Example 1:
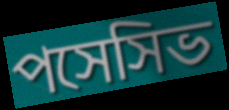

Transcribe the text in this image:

পসেসিভ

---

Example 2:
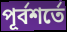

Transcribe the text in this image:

পূর্বশর্তে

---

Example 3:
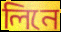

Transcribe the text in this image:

লিনে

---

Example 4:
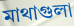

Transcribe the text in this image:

মাথাগুলা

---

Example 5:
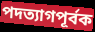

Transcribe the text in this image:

পদত্যাগপূর্বক